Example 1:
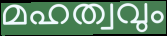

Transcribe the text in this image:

മഹത്വവും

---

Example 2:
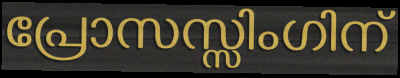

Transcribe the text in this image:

പ്രോസസ്സിംഗിന്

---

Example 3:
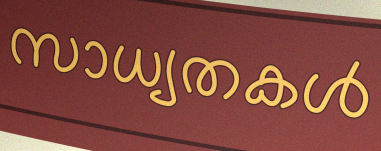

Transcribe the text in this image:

സാധ്യതകൾ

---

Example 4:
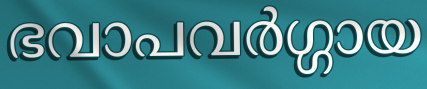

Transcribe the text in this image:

ഭവാപവർഗ്ഗായ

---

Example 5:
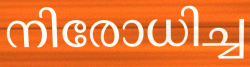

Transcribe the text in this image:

നിരോധിച്ച